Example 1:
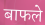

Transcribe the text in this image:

बाफले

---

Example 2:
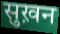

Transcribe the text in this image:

सुख़न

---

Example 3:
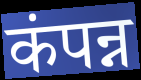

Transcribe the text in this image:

कंपन्न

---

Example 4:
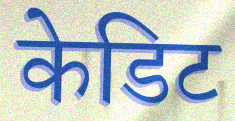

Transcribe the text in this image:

केडिट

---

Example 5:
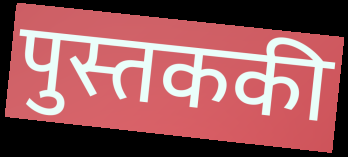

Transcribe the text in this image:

पुस्तककी